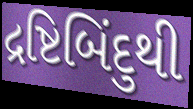
દ્રષ્ટિબિંદુથી